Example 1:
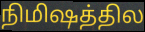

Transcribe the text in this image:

நிமிஷத்தில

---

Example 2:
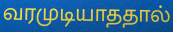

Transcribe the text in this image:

வரமுடியாததால்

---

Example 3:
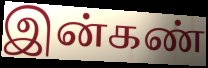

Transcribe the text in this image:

இன்கண்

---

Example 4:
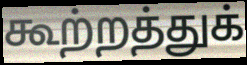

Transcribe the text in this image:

கூற்றத்துக்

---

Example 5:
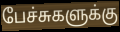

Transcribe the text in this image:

பேச்சுகளுக்கு